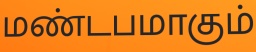
மண்டபமாகும்